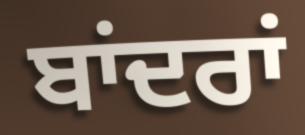
ਬਾਂਦਰਾਂ